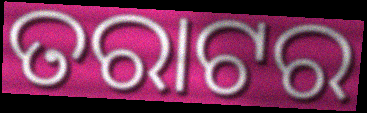
ତରାଟର